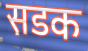
स़डक